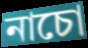
নাচো